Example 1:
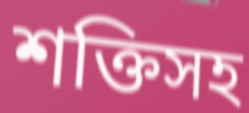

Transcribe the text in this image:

শক্তিসহ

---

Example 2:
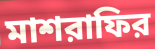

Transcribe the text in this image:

মাশরাফির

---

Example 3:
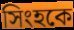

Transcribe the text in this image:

সিংহকে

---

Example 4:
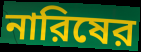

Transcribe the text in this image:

নারিষের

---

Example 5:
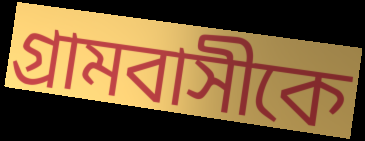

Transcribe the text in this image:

গ্রামবাসীকে